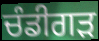
ਚੰਡੀਗਡ਼